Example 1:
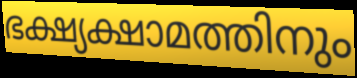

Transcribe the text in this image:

ഭക്ഷ്യക്ഷാമത്തിനും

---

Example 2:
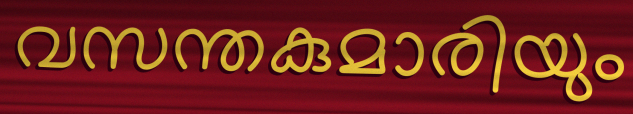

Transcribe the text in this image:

വസന്തകുമാരിയും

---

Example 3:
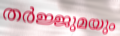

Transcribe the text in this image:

തർജ്ജുമയും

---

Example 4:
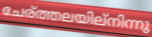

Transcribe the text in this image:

ചേര്ത്തലയില്നിന്നു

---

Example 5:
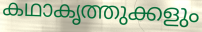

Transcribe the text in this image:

കഥാകൃത്തുക്കളും